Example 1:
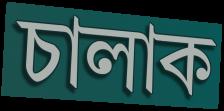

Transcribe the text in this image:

চালাক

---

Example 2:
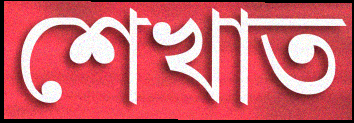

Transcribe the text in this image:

শেখাত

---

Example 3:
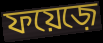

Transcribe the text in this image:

ফয়েজ়ে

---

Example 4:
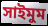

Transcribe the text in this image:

সাইমুম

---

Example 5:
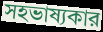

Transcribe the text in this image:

সহভাষ্যকার